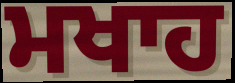
ਮਖਾਹ